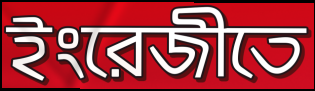
ইংরেজীতে